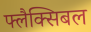
फ्लैक्सिबल